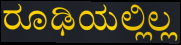
ರೂಢಿಯಲ್ಲಿಲ್ಲ